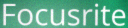
Focusrite